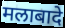
मलाबादे